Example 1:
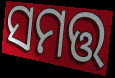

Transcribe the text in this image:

ସମତ୍ତ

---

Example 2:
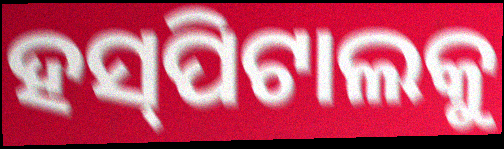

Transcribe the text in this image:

ହସ୍‌ପିଟାଲକୁ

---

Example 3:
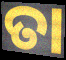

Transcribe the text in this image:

ତା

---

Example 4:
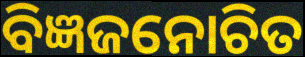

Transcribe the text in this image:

ବିଜ୍ଞଜନୋଚିତ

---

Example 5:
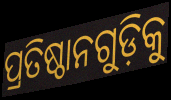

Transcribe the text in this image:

ପ୍ରତିଷ୍ଠାନଗୁଡ଼ିକୁ